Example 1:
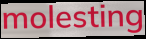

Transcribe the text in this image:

molesting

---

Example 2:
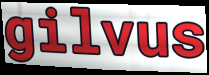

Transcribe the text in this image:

gilvus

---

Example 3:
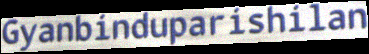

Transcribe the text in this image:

Gyanbinduparishilan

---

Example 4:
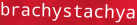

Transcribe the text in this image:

brachystachya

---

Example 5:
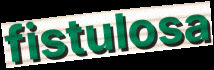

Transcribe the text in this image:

fistulosa